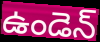
ఉండెన్